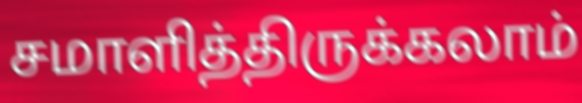
சமாளித்திருக்கலாம்